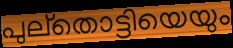
പുല്തൊട്ടിയെയും